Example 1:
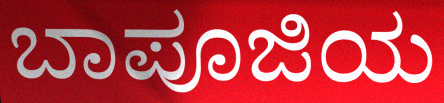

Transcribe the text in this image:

ಬಾಪೂಜಿಯ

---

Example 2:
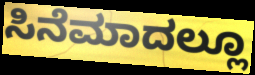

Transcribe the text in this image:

ಸಿನೆಮಾದಲ್ಲೂ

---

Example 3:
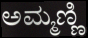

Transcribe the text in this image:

ಅಮ್ಮಣ್ಣಿ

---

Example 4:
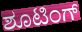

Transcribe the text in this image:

ಶೂಟಿಂಗ್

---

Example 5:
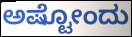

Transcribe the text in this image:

ಅಷ್ಟೋಂದು